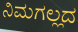
ನಿಮಗಲ್ಲದ